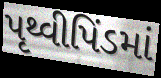
પૃથ્વીપિંડમાં